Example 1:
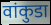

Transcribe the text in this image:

वांकुडा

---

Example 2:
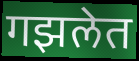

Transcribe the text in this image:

गझलेत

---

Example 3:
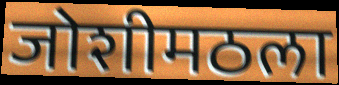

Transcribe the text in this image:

जोशीमठला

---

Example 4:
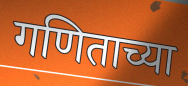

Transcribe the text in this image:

गणिताच्या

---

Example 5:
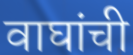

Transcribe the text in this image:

वाघांची